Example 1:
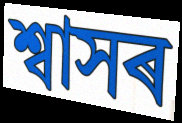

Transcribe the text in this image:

শ্বাসৰ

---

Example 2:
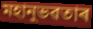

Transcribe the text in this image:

মহানুভৱতাৰ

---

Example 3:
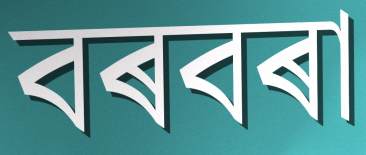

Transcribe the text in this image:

বৰবৰা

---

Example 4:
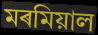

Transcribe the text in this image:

মৰমিয়াল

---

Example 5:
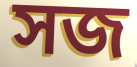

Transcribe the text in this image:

সজ